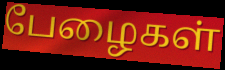
பேழைகள்